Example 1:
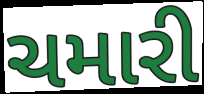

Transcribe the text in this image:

ચમારી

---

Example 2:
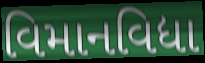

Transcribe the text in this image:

વિમાનવિદ્યા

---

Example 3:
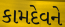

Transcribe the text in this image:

કામદેવને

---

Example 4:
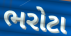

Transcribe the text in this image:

ભરોટા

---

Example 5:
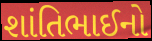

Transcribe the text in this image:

શાંતિભાઈનો